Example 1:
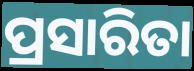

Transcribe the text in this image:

ପ୍ରସାରିତା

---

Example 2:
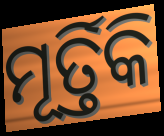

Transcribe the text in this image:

ମୂର୍ତ୍ତିକି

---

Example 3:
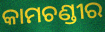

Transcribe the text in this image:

କାମଚଣ୍ଡୀର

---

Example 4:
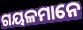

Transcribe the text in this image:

ଗୟଳମାନେ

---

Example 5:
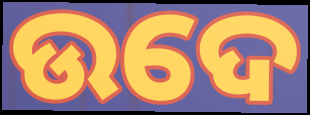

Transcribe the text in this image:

ଉଦେ